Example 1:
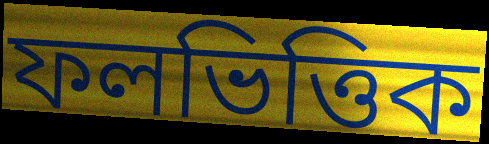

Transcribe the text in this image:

ফলভিত্তিক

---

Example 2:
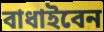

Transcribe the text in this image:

বাধাইবেন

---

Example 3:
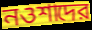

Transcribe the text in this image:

নওশাদের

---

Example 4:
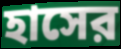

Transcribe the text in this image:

হাসের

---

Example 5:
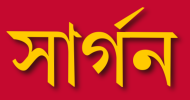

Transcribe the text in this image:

সার্গন